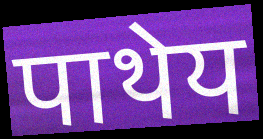
पाथेय